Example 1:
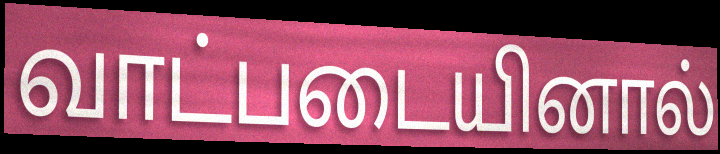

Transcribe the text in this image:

வாட்படையினால்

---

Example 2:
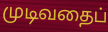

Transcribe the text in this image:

முடிவதைப்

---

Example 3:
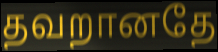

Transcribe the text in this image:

தவறானதே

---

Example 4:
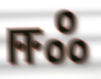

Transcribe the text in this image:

ஈஃ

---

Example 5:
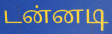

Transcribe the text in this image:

டன்னடி